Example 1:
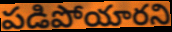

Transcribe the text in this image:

పడిపోయారని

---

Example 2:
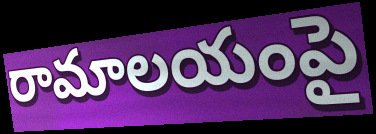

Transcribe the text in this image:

రామాలయంపై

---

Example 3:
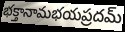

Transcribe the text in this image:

భక్తానామభయప్రదమ్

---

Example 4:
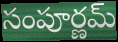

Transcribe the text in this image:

సంపూర్ణమ్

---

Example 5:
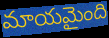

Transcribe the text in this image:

మాయమైంది